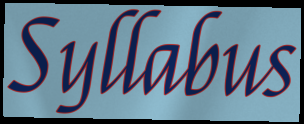
Syllabus